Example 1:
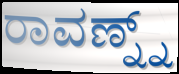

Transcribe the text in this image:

ರಾವಣ್ನ್ನ್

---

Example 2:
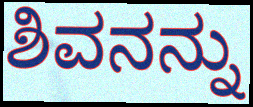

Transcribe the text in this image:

ಶಿವನನ್ನು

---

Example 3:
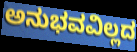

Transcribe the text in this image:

ಅನುಭವವಿಲ್ಲದ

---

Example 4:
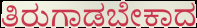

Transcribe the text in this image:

ತಿರುಗಾಡಬೇಕಾದ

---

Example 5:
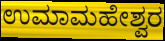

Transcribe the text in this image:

ಉಮಾಮಹೇಶ್ವರ